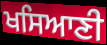
ਖਸਿਆਣੀ